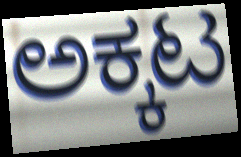
ಅಕ್ಕಟ